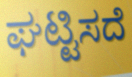
ಘಟ್ಟಿಸದೆ